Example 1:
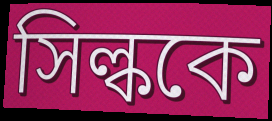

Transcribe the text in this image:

সিল্ককে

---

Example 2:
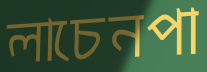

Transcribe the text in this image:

লাচেনপা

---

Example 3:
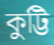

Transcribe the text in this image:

কুট্টি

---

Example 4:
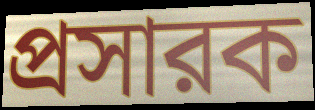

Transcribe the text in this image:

প্রসারক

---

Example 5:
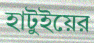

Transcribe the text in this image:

হাটুইয়ের